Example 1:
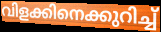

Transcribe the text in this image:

വിളക്കിനെക്കുറിച്ച്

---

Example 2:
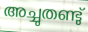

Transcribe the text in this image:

അച്ചുതണ്ടു്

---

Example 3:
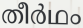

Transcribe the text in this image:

തീർഥം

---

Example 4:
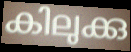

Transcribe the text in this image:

കിലുക്കു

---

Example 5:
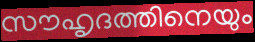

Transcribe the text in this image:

സൗഹൃദത്തിനെയും